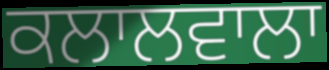
ਕਲਾਲਵਾਲਾ